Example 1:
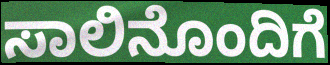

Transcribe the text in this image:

ಸಾಲಿನೊಂದಿಗೆ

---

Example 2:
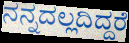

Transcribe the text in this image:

ನನ್ನದಲ್ಲದಿದ್ದರೆ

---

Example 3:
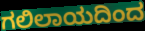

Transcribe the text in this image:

ಗಲಿಲಾಯದಿಂದ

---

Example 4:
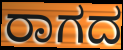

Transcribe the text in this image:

ರಾಗದ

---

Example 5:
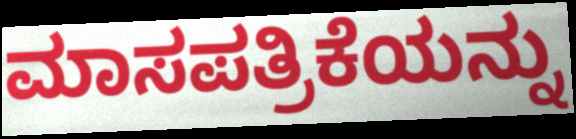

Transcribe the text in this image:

ಮಾಸಪತ್ರಿಕೆಯನ್ನು